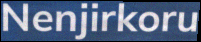
Nenjirkoru